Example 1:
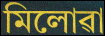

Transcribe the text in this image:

মিলোৱা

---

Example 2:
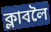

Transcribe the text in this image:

ক্লাবলৈ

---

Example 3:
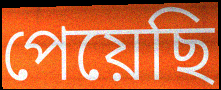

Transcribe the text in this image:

পেয়েছি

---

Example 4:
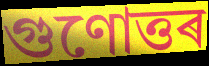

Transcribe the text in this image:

গুণোত্তৰ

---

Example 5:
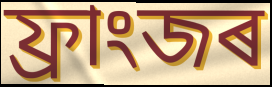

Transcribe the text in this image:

ফ্ৰাংজৰ